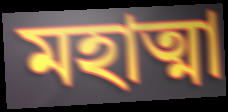
মহাত্মা